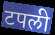
टपली